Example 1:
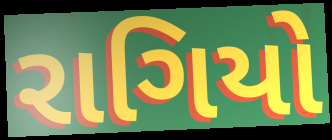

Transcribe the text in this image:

રાગિયો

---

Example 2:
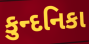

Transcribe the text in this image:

કુન્દનિકા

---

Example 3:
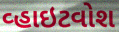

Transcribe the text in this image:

વ્હાઇટવોશ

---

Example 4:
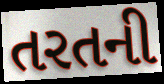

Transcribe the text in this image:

તરતની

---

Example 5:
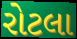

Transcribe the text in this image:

રોટલા